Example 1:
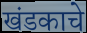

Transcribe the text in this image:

खंडकाचे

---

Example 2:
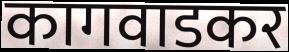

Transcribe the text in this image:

कागवाडकर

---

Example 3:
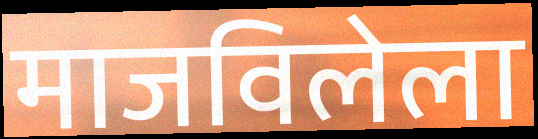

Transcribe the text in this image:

माजविलेला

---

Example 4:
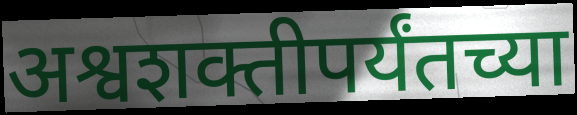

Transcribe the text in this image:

अश्वशक्तीपर्यंतच्या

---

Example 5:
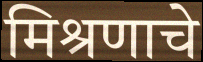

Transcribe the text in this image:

मिश्रणाचे